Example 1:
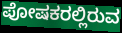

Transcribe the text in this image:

ಪೋಷಕರಲ್ಲಿರುವ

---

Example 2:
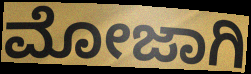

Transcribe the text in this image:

ಮೋಜಾಗಿ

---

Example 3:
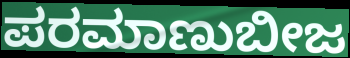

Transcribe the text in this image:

ಪರಮಾಣುಬೀಜ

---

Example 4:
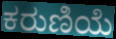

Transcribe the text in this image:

ಕರುಣಿಯೆ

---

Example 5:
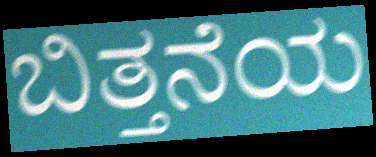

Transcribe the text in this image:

ಬಿತ್ತನೆಯ